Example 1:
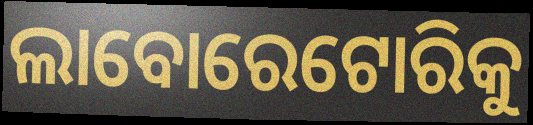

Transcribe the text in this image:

ଲାବୋରେଟୋରିକୁ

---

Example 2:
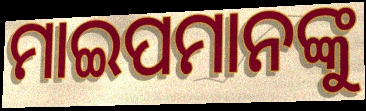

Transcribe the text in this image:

ମାଇପମାନଙ୍କୁ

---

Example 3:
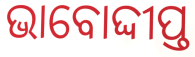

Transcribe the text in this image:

ଭାବୋଦ୍ଦୀପ୍ତ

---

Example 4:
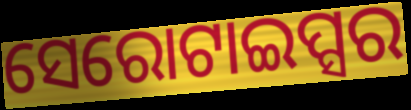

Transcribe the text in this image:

ସେରୋଟାଇପ୍ସର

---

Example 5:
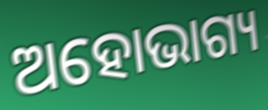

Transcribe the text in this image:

ଅହୋଭାଗ୍ୟ